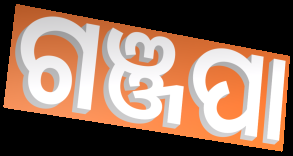
ଗଞ୍ଜପା